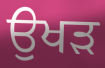
ਉਖੜ